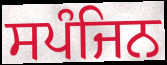
ਸਪੰਜਿਨ